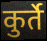
कुर्ते